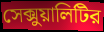
সেক্সুয়ালিটির